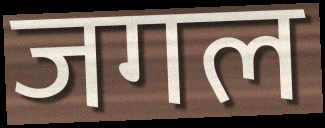
जगल